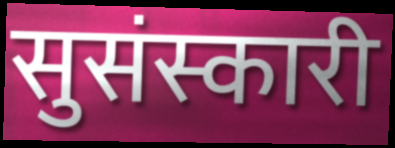
सुसंस्कारी